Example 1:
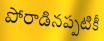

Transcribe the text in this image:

పోరాడినప్పటికీ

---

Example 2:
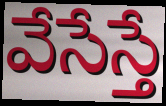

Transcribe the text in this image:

వేసేస్తే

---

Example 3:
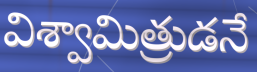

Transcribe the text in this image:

విశ్వామిత్రుడనే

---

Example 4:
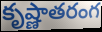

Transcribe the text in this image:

కృష్ణాతరంగ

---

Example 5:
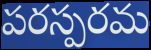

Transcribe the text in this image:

పరస్పరమ